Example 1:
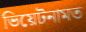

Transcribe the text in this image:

ভিয়েটনামত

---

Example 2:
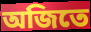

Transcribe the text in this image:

অজিতে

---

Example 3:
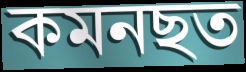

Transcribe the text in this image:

কমনছত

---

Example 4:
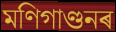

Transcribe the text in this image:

মণিগাণ্ডনৰ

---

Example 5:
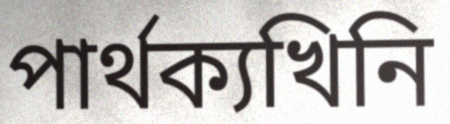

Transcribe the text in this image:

পাৰ্থক্যখিনি